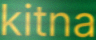
kitna